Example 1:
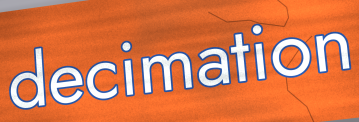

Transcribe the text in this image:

decimation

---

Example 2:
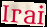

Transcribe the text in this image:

Irai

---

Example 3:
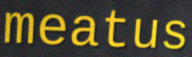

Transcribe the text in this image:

meatus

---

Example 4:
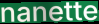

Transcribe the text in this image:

nanette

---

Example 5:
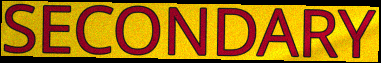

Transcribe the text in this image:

SECONDARY